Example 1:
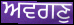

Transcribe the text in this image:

ਅਵਗਣੁ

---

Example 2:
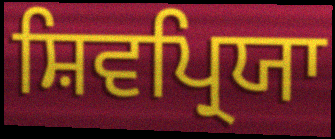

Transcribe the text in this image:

ਸ਼ਿਵਪ੍ਰਿਯਾ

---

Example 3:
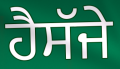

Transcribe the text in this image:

ਹੈਸੱਜੇ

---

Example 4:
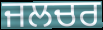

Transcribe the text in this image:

ਜਲਚਰ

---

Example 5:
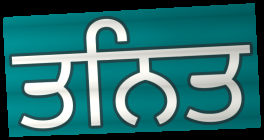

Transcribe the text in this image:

ਤਨਿਤ